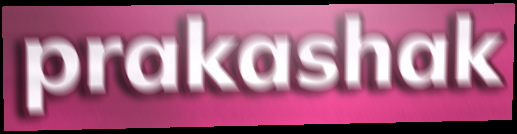
prakashak